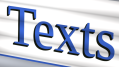
Texts